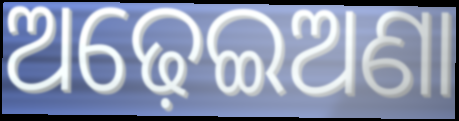
ଅଢ଼େଇଅଣା